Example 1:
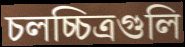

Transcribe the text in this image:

চলচ্চিত্রগুলি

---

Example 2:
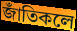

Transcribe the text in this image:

জাঁতিকলে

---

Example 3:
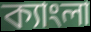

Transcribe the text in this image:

ক্যাংলা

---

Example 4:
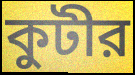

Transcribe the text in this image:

কুটীর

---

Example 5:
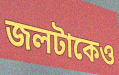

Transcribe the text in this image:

জলটাকেও